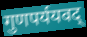
गुणपर्ययवद्